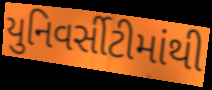
યુનિવર્સીટીમાંથી